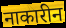
नाकारीन